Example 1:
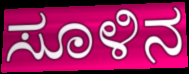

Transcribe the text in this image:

ಸೂಳಿನ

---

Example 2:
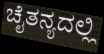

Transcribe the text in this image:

ಚೈತನ್ಯದಲ್ಲಿ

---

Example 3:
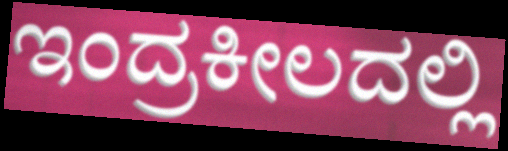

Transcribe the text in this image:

ಇಂದ್ರಕೀಲದಲ್ಲಿ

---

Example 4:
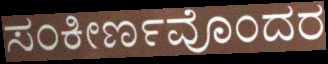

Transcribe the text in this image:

ಸಂಕೀರ್ಣವೊಂದರ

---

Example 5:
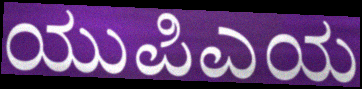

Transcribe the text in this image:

ಯುಪಿಎಯ